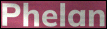
Phelan